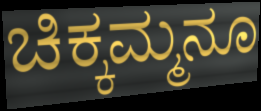
ಚಿಕ್ಕಮ್ಮನೂ